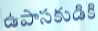
ఉపాసకుడికి